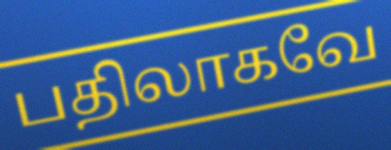
பதிலாகவே